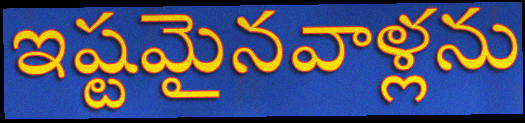
ఇష్టమైనవాళ్లను